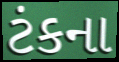
ટંકના